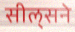
सील्सने